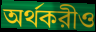
অর্থকরীও